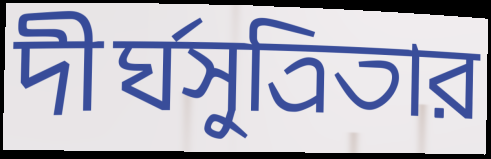
দীর্ঘসুত্রিতার